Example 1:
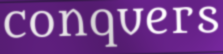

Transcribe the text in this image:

conquers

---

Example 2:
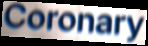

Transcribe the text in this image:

Coronary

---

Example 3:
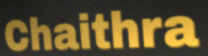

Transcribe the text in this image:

Chaithra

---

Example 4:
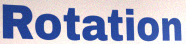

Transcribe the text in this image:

Rotation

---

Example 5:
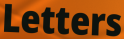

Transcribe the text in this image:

Letters